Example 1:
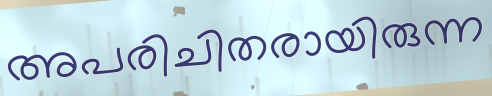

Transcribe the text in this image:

അപരിചിതരായിരുന്ന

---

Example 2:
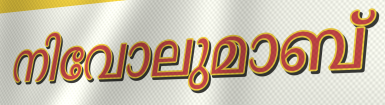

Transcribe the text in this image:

നിവോലുമാബ്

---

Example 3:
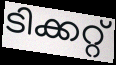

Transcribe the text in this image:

ടിക്കറ്റ്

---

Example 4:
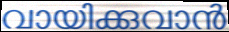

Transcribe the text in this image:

വായിക്കുവാൻ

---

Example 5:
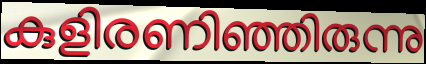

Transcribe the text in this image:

കുളിരണിഞ്ഞിരുന്നു